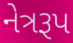
નેત્રરૂપ